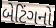
બેટિંગનો